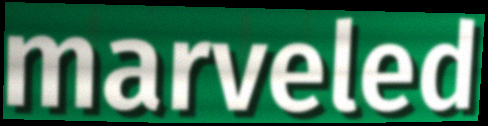
marveled